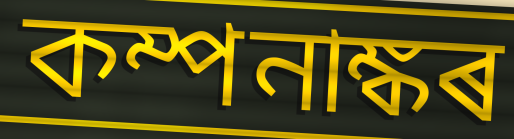
কম্পনাঙ্কৰ